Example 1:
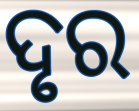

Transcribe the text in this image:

ଦୃର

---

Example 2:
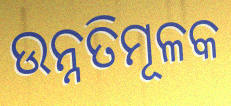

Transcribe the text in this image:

ଉନ୍ନତିମୂଳକ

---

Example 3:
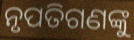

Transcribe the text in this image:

ନୃପତିଗଣଙ୍କୁ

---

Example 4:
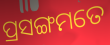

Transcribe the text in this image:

ପ୍ରସଙ୍ଗମତେ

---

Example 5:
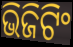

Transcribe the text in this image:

ଭିଜିଟିଂ